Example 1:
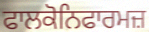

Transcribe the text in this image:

ਫਾਲਕੋਨਿਫਾਰਮਜ਼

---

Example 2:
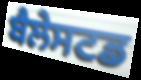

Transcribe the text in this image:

ਬੈਲੇਸਟਡ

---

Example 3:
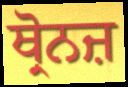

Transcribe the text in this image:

ਥ੍ਰੋਨਜ਼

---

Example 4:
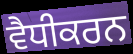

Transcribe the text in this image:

ਵੈਧੀਕਰਨ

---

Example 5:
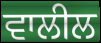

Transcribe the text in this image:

ਵਾਲੀਲ